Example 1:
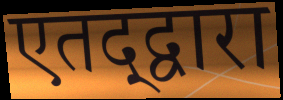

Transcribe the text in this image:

एतद्द्वारा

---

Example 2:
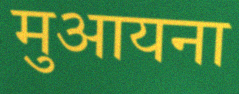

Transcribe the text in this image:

मुआयना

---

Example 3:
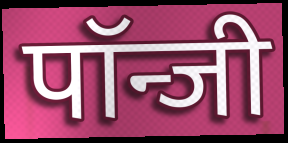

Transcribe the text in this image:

पॉन्जी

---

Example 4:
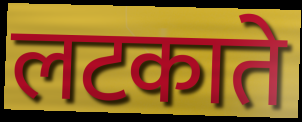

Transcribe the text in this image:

लटकाते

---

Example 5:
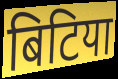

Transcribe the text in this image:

बिटिया